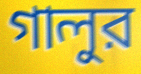
গালুর